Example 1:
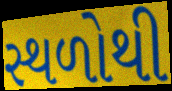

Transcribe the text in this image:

સ્થળોથી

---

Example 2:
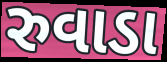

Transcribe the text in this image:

રુવાડા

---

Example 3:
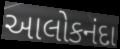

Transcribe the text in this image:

આલોકનંદા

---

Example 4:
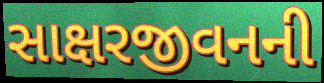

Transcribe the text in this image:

સાક્ષરજીવનની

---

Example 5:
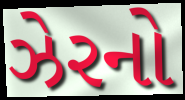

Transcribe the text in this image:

ઝેરનો